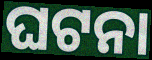
ଘଟନା